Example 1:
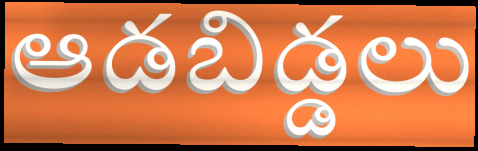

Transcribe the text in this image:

ఆడబిడ్డలు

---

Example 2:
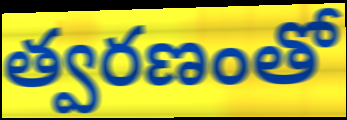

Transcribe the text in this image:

త్వరణంతో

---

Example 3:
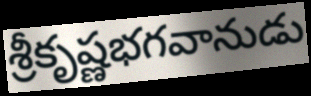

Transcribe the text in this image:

శ్రీకృష్ణభగవానుడు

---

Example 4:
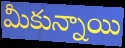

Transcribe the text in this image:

మీకున్నాయి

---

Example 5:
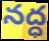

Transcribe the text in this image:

నద్ధ